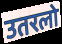
उतरलो